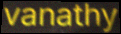
vanathy